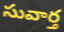
సువార్త